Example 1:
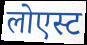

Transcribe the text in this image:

लोएस्ट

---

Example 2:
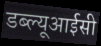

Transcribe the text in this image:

डब्ल्यूआईसी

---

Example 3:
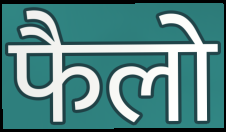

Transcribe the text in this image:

फैलो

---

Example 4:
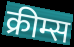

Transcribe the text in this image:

क्रीम्‍स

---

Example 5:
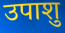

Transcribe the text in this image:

उपाशु